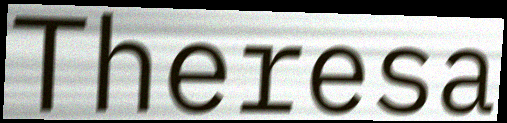
Theresa